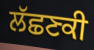
ਲੱਛਣਕੀ